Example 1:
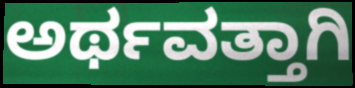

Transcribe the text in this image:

ಅರ್ಥವತ್ತಾಗಿ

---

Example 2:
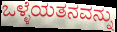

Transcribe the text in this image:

ಒಳ್ಳೆಯತನವನ್ನು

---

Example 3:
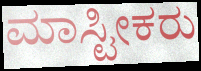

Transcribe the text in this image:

ಮಾಸ್ಟೀಕರು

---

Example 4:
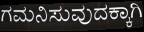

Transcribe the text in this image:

ಗಮನಿಸುವುದಕ್ಕಾಗಿ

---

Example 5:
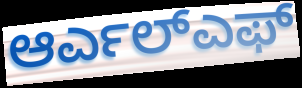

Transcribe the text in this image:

ಆರ್ಎಲ್ಎಫ್